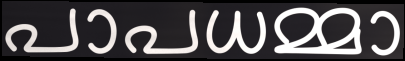
പാപധമ്മാ